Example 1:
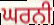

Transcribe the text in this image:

ਘਰਨੀ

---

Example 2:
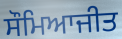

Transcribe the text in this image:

ਸੌਮਿਆਜੀਤ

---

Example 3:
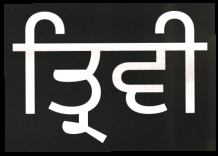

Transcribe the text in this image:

ਤ੍ਰਿਵੀ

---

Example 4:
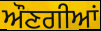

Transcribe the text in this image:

ਔਣਗੀਆਂ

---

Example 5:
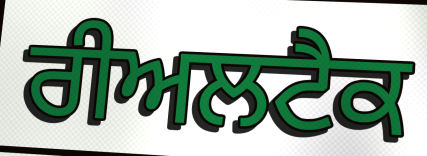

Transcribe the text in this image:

ਰੀਅਲਟੈਕ